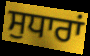
ਸੁਧਾਰਾਂ